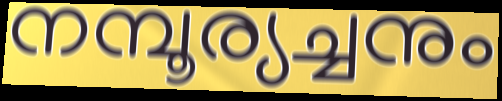
നമ്പൂര്യച്ചനും